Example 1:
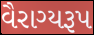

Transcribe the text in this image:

વૈરાગ્યરૂપ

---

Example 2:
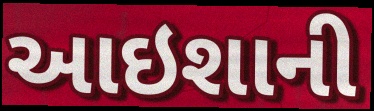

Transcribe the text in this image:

આઇશાની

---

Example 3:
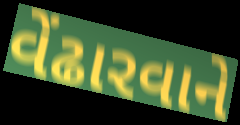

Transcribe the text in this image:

વેંઢારવાને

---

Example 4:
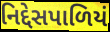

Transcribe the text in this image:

નિદ્દેસપાળિયં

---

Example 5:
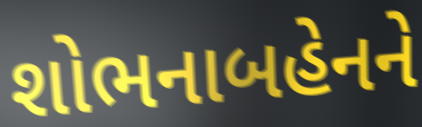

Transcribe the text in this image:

શોભનાબહેનને